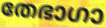
തേഭാഗാ